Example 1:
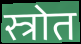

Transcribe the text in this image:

स्त्रोत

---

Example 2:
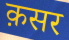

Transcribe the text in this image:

क़सर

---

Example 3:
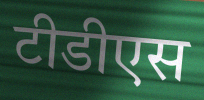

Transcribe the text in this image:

टीडीएस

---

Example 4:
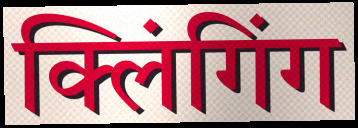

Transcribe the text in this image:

क्लिंगिंग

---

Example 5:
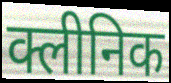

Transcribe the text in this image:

क्लीनिक